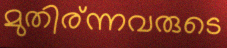
മുതിര്ന്നവരുടെ